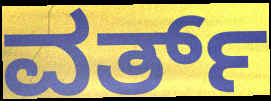
ವರ್ತ್